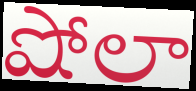
షోలా